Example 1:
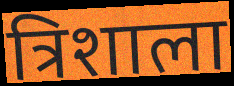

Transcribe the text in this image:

त्रिशाला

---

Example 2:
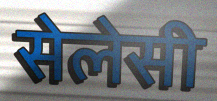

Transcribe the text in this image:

सेलेसी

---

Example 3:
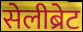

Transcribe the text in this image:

सेलीब्रेट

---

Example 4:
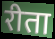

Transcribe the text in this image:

रीता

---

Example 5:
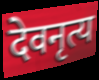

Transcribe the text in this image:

देवनृत्य